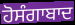
ਹੋਸੰਗਾਬਾਦ